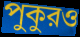
পুকুরও